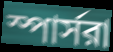
স্পার্সরা